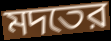
মদতের